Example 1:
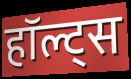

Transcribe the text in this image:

हॉल्ट्स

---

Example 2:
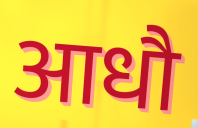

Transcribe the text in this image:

आधौ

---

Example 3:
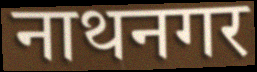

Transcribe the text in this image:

नाथनगर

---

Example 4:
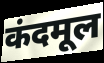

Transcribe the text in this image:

कंदमूल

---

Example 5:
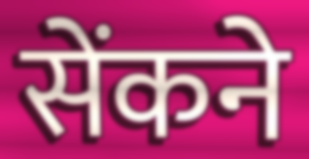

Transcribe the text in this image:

सेंकने